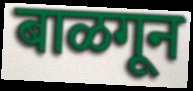
बाळगून